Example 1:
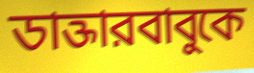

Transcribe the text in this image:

ডাক্তারবাবুকে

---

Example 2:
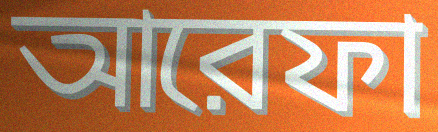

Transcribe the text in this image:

আরেফা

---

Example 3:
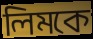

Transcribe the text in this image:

লিমকে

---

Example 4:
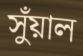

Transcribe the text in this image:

সুঁয়াল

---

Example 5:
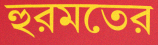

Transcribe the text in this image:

হুরমতের